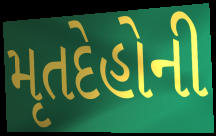
મૃતદેહોની